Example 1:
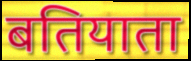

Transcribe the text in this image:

बतियाता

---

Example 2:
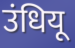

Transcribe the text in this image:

उंधियू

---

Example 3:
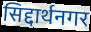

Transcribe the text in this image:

सिद्दार्थनगर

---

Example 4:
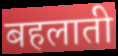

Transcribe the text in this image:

बहलाती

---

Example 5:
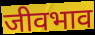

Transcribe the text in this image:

जीवभाव